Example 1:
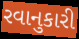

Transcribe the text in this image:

રવાનુકારી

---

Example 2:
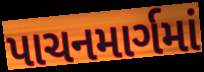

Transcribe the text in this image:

પાચનમાર્ગમાં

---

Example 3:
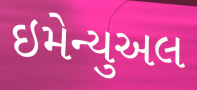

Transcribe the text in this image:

ઇમેન્યુઅલ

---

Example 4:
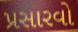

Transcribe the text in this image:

પ્રસારવો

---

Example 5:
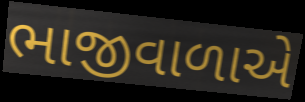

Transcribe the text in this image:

ભાજીવાળાએ